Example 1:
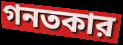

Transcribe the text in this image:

গনতকার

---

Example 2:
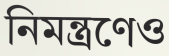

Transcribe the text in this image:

নিমন্ত্রণেও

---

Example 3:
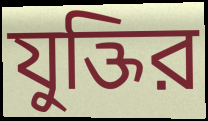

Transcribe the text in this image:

যুক্তির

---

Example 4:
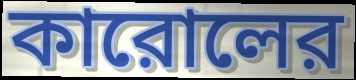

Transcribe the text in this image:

কারোলের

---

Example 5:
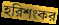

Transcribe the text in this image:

হরিশংকর